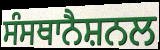
ਸੰਸਥਾਨੈਸ਼ਨਲ